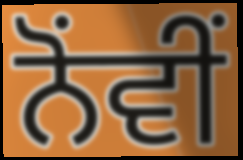
ਨੋਂਵੀਂ